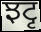
ਝਟ੍ਟ